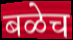
बळेच